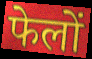
फेलों